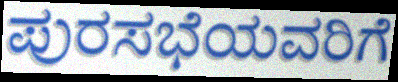
ಪುರಸಭೆಯವರಿಗೆ